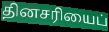
தினசரியைப்